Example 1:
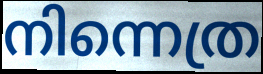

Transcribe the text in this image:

നിന്നെത്ര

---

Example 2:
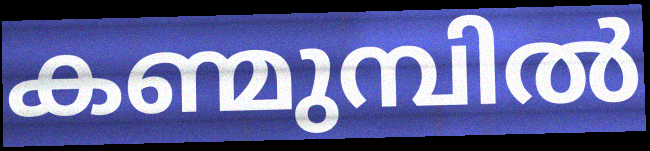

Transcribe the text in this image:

കണ്മുമ്പിൽ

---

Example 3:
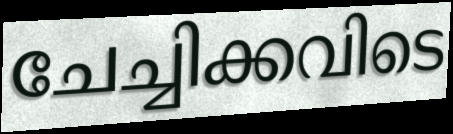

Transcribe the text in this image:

ചേച്ചിക്കവിടെ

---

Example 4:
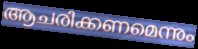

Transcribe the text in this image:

ആചരിക്കണമെന്നും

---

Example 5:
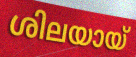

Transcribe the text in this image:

ശിലയായ്